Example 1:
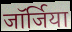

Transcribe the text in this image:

जॉर्जिया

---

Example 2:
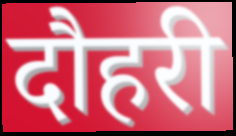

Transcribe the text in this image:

दौहरी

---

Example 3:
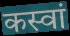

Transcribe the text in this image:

कस्‍वां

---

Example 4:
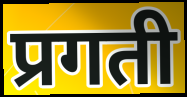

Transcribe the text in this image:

प्रगती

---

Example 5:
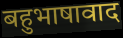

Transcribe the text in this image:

बहुभाषावाद